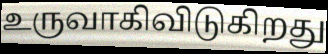
உருவாகிவிடுகிறது